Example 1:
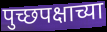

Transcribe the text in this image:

पुच्छपक्षाच्या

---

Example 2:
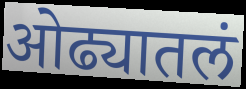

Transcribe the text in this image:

ओढ्यातलं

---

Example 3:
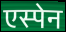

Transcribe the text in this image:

एस्पेन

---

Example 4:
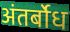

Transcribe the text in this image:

अंतर्बोध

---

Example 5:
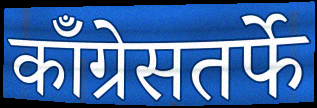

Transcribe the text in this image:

कॉँग्रेसतर्फे